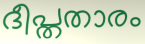
ദീപ്തതാരം